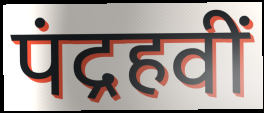
पंद्रहवीं